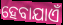
ହେବାଯାଏଁ